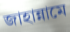
জাহান্নামে